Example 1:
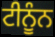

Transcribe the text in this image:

ਟੀਨੂੰਨ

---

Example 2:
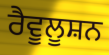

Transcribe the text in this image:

ਰੈਵੂਲੂਸ਼ਨ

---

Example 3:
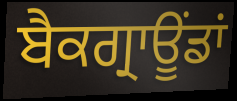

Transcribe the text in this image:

ਬੈਕਗ੍ਰਾਊਂਡਾਂ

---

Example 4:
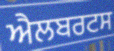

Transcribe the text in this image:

ਐਲਬਰਟਸ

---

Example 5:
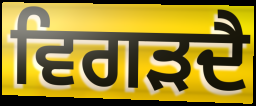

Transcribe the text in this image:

ਵਿਗੜਦੈ